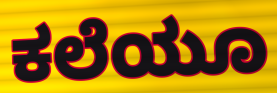
ಕಲೆಯೂ